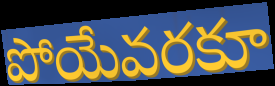
పోయేవరకూ